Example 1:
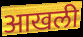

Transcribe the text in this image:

आखली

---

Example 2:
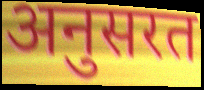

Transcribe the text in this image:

अनुसरत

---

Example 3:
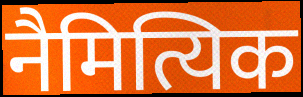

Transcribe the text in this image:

नैमित्यिक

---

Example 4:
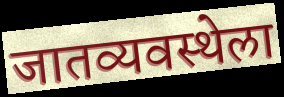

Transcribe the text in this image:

जातव्यवस्थेला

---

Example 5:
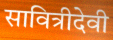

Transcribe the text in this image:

सावित्रीदेवी